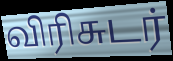
விரிசுடர்